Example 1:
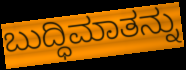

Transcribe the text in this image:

ಬುದ್ಧಿಮಾತನ್ನು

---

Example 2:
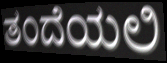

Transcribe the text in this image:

ತಂದೆಯಲಿ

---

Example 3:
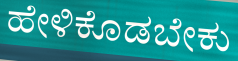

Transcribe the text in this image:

ಹೇಳಿಕೊಡಬೇಕು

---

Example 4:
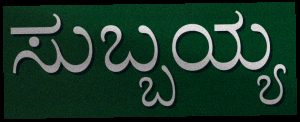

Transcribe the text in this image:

ಸುಬ್ಬಯ್ಯ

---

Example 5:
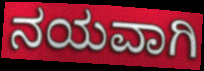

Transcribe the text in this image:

ನಯವಾಗಿ